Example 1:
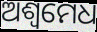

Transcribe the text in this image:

ଅଶ୍ୱମେଧ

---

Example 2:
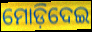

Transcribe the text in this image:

ମୋଡ଼ିଦେଇ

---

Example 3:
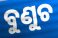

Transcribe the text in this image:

ବୁଣୁଚ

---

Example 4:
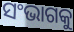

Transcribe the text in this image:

ସଂଭାଗକୁ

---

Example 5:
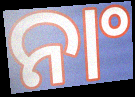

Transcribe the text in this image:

ନାଂ